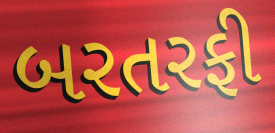
બરતરફી